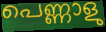
പെണ്ണാളു